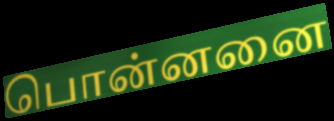
பொன்னனை